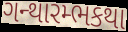
ગન્થારમ્ભકથા